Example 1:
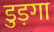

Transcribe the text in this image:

डुड़गा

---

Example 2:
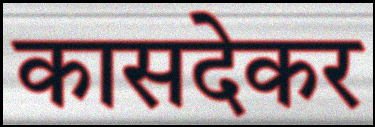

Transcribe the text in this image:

कासदेकर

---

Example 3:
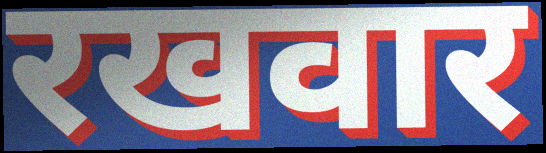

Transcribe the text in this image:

रखवार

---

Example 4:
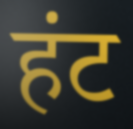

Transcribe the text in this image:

हंट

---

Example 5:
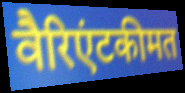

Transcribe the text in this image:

वैरिएंटकीमत